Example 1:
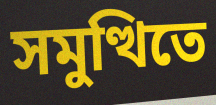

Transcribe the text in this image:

সমুত্থিতে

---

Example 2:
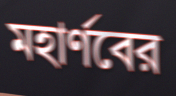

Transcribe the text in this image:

মহার্ণবের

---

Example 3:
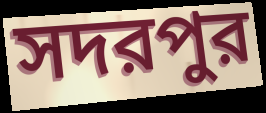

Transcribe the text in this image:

সদরপুর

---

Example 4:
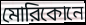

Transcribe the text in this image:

মোরিকোনে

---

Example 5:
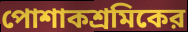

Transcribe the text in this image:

পোশাকশ্রমিকের